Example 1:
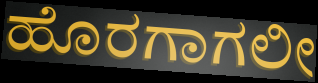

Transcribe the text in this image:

ಹೊರಗಾಗಲೀ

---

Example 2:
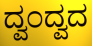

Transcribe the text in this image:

ದ್ವಂದ್ವದ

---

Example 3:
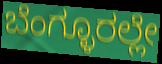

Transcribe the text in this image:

ಬೆಂಗ್ಳೂರಲ್ಲೇ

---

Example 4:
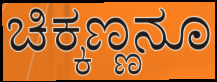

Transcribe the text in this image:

ಚಿಕ್ಕಣ್ಣನೂ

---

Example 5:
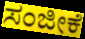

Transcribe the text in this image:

ಸಂಜೀಕೆ